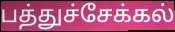
பத்துச்சேக்கல்